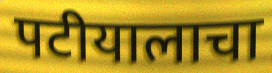
पटीयालाचा